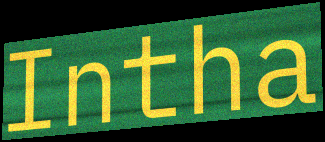
Intha